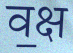
व॒क्ष